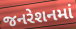
જનરેશનમાં